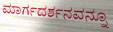
ಮಾರ್ಗದರ್ಶನವನ್ನೂ